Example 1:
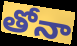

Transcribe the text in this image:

తోనా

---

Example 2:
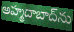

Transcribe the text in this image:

అహ్మదాబాద్‌ను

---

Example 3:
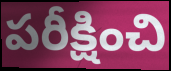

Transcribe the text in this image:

పరీక్షించి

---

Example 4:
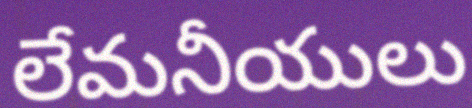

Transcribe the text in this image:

లేమనీయులు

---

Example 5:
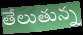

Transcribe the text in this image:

తేలుతున్న